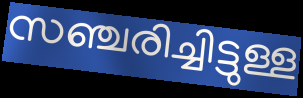
സഞ്ചരിച്ചിട്ടുള്ള